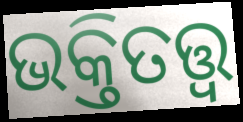
ଭକ୍ତିତତ୍ତ୍ୱ